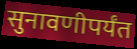
सुनावणीपर्यंत